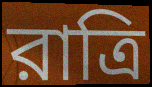
রাত্রি